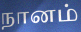
நானம்